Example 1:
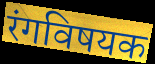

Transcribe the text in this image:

रंगविषयक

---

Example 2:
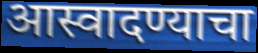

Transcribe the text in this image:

आस्वादण्याचा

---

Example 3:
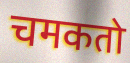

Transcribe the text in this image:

चमकतो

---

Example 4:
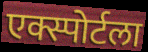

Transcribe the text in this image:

एक्स्पोर्टला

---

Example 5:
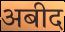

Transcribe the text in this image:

अबीद